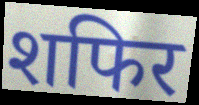
शफिर